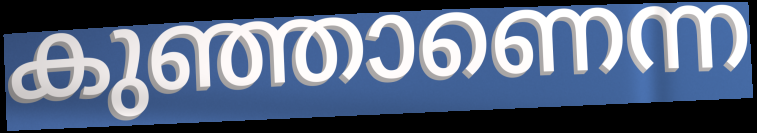
കുഞ്ഞാണെന്ന